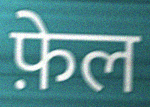
फ़ेल